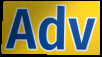
Adv